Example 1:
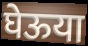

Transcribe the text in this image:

घेऊया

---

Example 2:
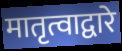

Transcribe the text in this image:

मातृत्वाद्वारे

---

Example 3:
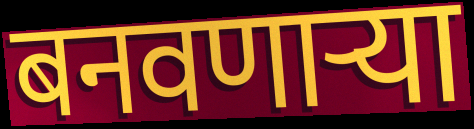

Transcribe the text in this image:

बनवणार्‍या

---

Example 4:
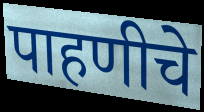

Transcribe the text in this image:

पाहणीचे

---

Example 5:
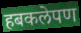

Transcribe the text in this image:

हबकलेपण